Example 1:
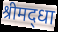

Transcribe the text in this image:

श्रीमद्धा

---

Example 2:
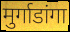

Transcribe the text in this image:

मुर्गाडांगा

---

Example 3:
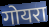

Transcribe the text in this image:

गोयरा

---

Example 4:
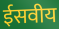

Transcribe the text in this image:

ईसवीय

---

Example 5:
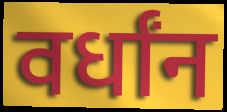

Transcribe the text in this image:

वर्धांन